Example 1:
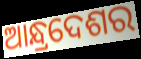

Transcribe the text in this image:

ଆନ୍ଧ୍ରଦେଶର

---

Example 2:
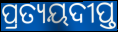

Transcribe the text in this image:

ପ୍ରତ୍ୟୟଦୀପ୍ତ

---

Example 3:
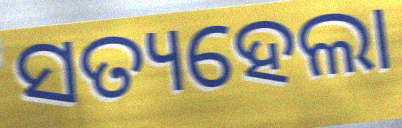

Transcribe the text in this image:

ସତ୍ୟହେଲା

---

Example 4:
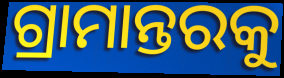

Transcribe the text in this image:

ଗ୍ରାମାନ୍ତରକୁ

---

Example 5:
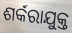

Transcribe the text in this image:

ଶର୍କରାଯୁକ୍ତ